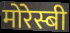
मोरेस्बी